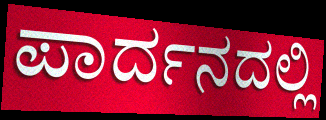
ಪಾರ್ದನದಲ್ಲಿ